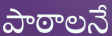
పాఠాలనే